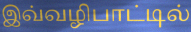
இவ்வழிபாட்டில்